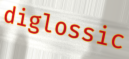
diglossic